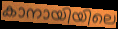
കാനായിയിലെ